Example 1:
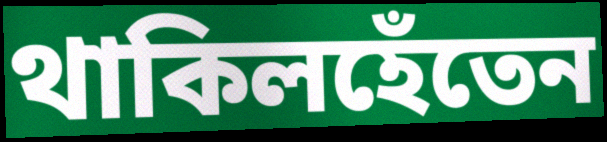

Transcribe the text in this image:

থাকিলহেঁতেন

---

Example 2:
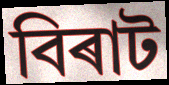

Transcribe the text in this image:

বিৰাট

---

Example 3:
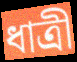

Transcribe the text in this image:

ধাত্ৰী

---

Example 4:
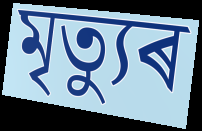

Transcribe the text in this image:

মৃত্যুৰ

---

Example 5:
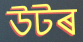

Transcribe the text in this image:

উটৰ